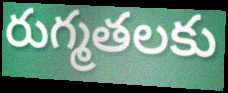
రుగ్మతలకు